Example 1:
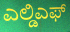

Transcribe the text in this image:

ಎಲ್ಡಿಎಫ್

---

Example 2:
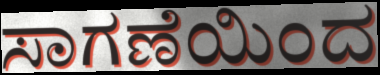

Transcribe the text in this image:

ಸಾಗಣೆಯಿಂದ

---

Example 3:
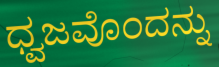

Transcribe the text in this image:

ಧ್ವಜವೊಂದನ್ನು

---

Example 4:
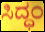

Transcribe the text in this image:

ಸಿದ್ಧಂ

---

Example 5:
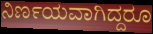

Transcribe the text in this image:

ನಿರ್ಣಯವಾಗಿದ್ದರೂ